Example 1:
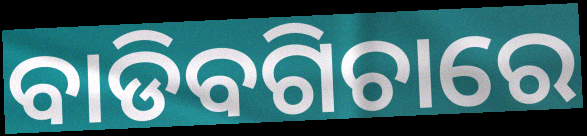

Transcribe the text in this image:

ବାଡିବଗିଚାରେ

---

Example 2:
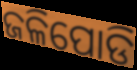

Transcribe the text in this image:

ଜଳିପୋଡି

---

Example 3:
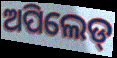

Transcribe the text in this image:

ଅପିଲେଡ୍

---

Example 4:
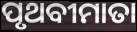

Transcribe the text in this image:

ପୃଥବୀମାତା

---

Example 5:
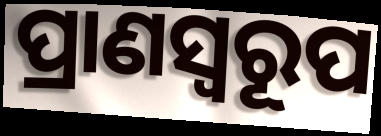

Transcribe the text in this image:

ପ୍ରାଣସ୍ୱରୂପ